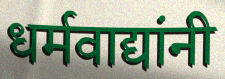
धर्मवाद्यांनी